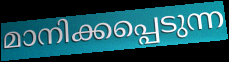
മാനിക്കപ്പെടുന്ന